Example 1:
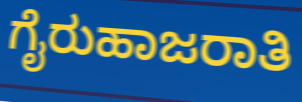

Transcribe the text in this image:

ಗೈರುಹಾಜರಾತಿ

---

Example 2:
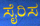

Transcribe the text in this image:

ಸೈರಿಸ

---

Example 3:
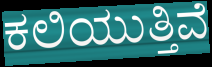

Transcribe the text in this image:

ಕಲಿಯುತ್ತಿವೆ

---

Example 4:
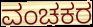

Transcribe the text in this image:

ವಂಚಕರ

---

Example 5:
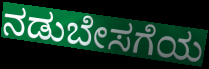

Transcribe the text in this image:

ನಡುಬೇಸಗೆಯ